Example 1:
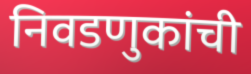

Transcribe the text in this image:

निवडणुकांची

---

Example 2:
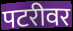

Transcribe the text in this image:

पटरीवर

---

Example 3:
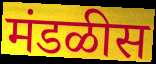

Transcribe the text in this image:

मंडळीस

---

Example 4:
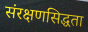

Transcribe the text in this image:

संरक्षणसिद्धता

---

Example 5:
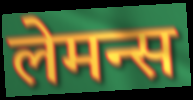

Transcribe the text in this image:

लेमन्स